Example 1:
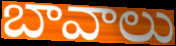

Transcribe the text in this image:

బావాలు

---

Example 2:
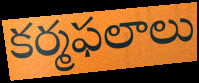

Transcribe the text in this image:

కర్మఫలాలు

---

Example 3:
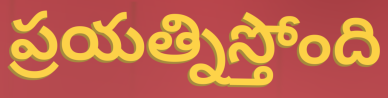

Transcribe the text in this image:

ప్రయత్నిస్తోంది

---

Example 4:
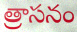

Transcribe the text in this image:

త్రాసనం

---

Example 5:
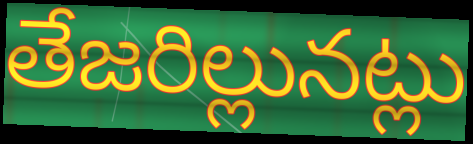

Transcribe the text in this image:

తేజరిల్లునట్లు